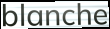
blanche